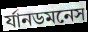
র্যানডমনেস